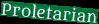
Proletarian